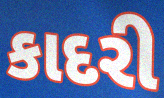
કાદરી